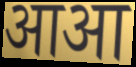
आआ